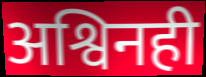
अश्विनही